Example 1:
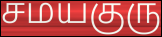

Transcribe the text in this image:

சமயகுரு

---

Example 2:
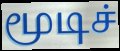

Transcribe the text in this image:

மூடிச்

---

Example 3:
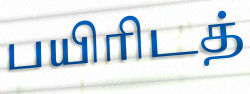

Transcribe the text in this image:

பயிரிடத்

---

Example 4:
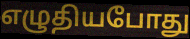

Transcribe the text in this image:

எழுதியபோது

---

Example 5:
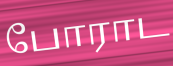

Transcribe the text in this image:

போராட